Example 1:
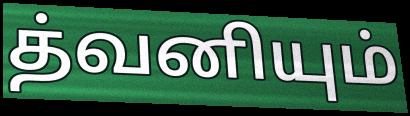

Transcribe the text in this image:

த்வனியும்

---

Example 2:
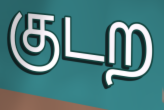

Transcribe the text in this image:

குடற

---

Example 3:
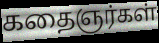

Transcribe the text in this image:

கதைஞர்கள்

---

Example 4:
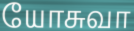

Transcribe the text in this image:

யோசுவா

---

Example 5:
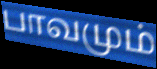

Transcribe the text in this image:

பாவமும்